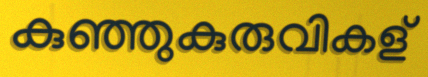
കുഞ്ഞുകുരുവികള്